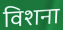
विशना